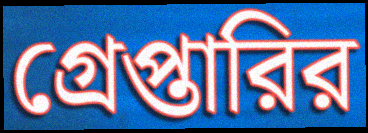
গ্রেপ্তারির